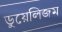
ডুয়েলিজম